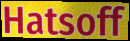
Hatsoff